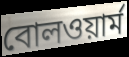
বোলওয়ার্ম